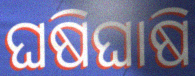
ଘଷିଘାଷି